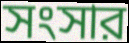
সংসার